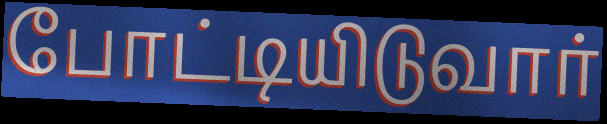
போட்டியிடுவார்